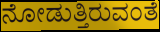
ನೋಡುತ್ತಿರುವಂತೆ